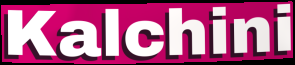
Kalchini